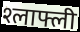
श्लाफ्ली